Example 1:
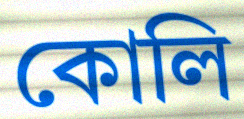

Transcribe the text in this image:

কোলি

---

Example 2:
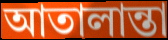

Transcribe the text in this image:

আতালান্তা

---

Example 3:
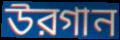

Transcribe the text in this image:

উরগান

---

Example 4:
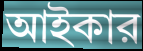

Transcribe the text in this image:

আইকার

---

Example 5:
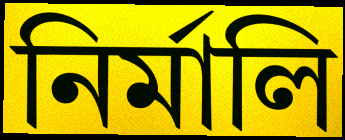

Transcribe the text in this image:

নির্মালি